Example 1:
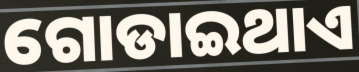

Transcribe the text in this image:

ଗୋଡାଇଥାଏ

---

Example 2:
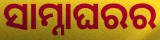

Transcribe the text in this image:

ସାମ୍ନାଘରର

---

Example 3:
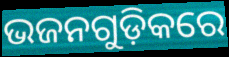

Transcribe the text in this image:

ଭଜନଗୁଡ଼ିକରେ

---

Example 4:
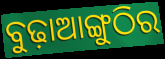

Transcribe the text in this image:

ବୁଢ଼ାଆଙ୍ଗୁଠିର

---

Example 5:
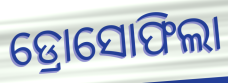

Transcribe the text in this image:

ଡ୍ରୋସୋଫିଲା